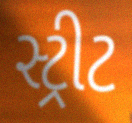
સ્ટ્રીટ